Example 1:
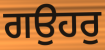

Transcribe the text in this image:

ਗਉਹਰੁ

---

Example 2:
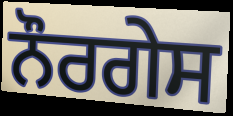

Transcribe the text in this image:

ਨੌਰਗੇਸ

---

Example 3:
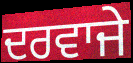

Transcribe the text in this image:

ਦਰਵਾਜੇ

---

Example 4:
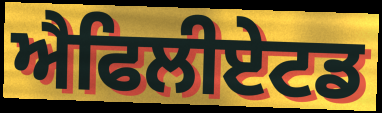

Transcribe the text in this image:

ਐਫਿਲੀਏਟਡ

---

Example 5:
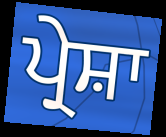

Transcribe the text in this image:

ਪ੍ਰੇਸ਼ਾ